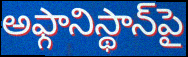
అఫ్గానిస్థాన్‌పై